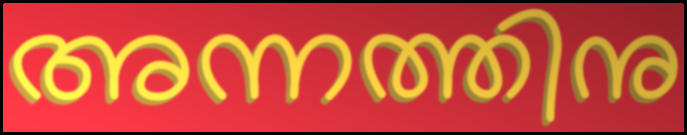
അന്നത്തിനു